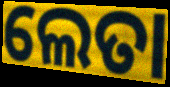
ଲେତା